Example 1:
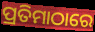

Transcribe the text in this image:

ପ୍ରତିମାଠାରେ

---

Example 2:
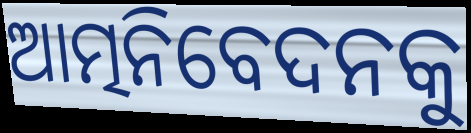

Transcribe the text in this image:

ଆତ୍ମନିବେଦନକୁ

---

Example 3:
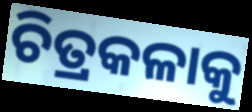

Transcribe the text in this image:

ଚିତ୍ରକଳାକୁ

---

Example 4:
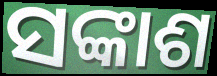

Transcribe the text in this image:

ସଙ୍କାଶ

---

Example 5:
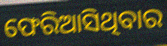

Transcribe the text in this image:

ଫେରିଆସିଥିବାର